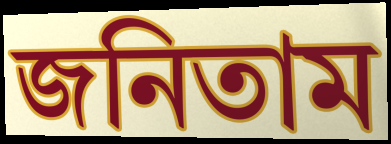
জনিতাম